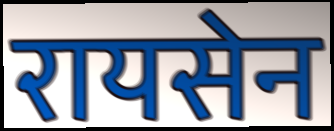
रायसेन